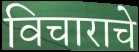
विचाराचे